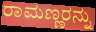
ರಾಮಣ್ಣರನ್ನು